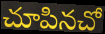
చూపినచో